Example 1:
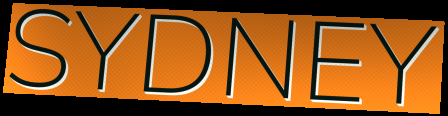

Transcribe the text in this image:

SYDNEY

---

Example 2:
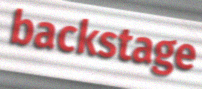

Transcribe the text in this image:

backstage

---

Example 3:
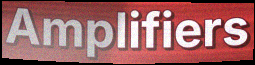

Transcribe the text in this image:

Amplifiers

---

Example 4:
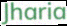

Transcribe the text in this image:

Jharia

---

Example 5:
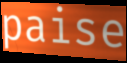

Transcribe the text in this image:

paise